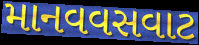
માનવવસવાટ